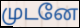
முடனே